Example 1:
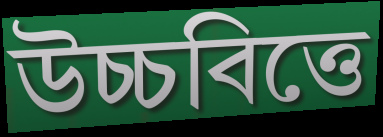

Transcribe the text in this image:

উচ্চবিত্তে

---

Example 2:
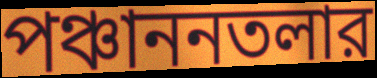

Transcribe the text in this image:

পঞ্চাননতলার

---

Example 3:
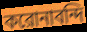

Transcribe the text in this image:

করোনাবন্দি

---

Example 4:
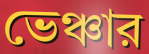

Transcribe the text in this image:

ভেঞ্চার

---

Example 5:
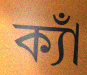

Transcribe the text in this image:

ক্যাঁ